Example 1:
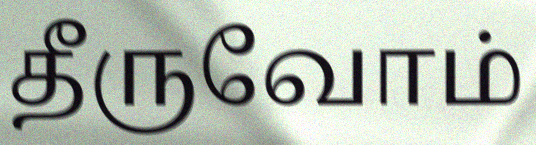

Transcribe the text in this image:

தீருவோம்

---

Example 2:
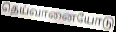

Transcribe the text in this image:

தெய்வானையோடு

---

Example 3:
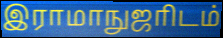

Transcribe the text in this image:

இராமாநுஜரிடம்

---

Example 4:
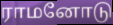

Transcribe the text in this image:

ராமனோடு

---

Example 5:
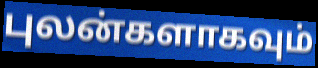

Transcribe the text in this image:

புலன்களாகவும்